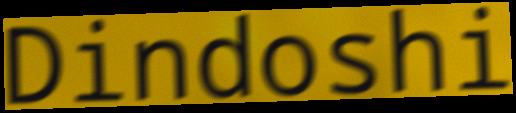
Dindoshi